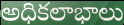
అధికలాభాలు